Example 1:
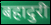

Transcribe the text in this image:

बहादुरी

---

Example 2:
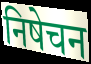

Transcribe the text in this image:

निषेचन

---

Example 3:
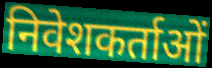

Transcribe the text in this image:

निवेशकर्ताओं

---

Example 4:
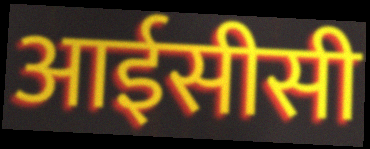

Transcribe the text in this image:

आईसीसी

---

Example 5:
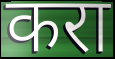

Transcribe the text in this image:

करा